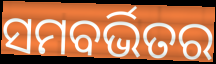
ସମବର୍ଭିତର